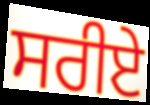
ਸਰੀਏ